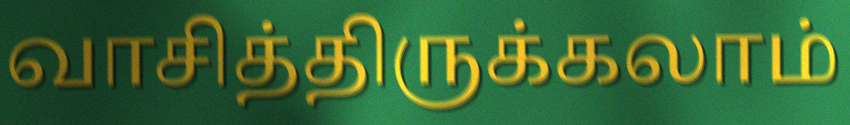
வாசித்திருக்கலாம்